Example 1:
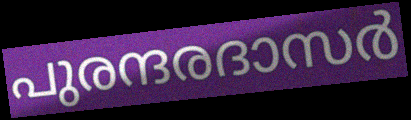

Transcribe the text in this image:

പുരന്ദരദാസർ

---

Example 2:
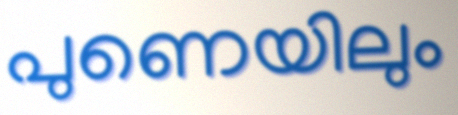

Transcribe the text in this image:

പുണെയിലും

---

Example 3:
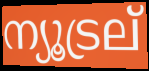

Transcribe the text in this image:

ന്യൂട്രല്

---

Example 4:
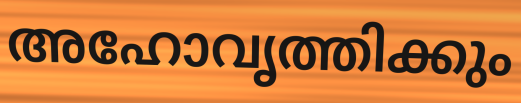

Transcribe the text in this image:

അഹോവൃത്തിക്കും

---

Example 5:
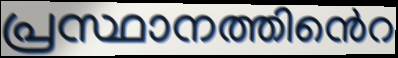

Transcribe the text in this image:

പ്രസ്ഥാനത്തിൻെറ